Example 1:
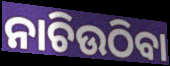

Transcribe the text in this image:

ନାଚିଉଠିବା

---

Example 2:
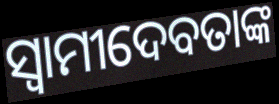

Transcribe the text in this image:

ସ୍ୱାମୀଦେବତାଙ୍କ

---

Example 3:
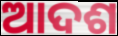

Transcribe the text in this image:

ଆଦଶ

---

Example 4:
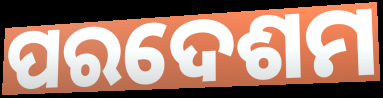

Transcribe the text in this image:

ପରଦେଶମ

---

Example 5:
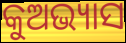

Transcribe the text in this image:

କୁଅଭ୍ୟାସ